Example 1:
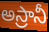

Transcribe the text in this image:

అస్రానీ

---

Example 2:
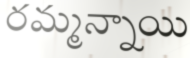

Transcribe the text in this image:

రమ్మన్నాయి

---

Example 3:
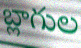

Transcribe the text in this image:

బ్లాగుల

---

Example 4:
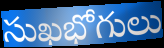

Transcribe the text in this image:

సుఖభోగులు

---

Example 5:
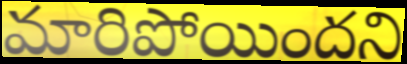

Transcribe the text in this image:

మారిపోయిందని